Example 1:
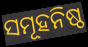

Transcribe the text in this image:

ସମୂହନିଷ୍ଠ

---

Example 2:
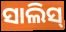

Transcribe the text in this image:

ସାଲିସ୍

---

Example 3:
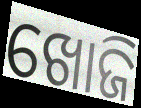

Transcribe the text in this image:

ଖୋଜି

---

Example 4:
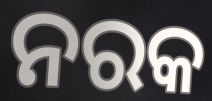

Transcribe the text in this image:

ନରକ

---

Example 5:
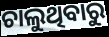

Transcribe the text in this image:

ଚାଲୁଥିବାରୁ